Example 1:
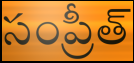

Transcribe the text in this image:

సంప్రీత్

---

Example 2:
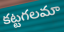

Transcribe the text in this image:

కట్టగలమా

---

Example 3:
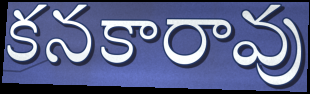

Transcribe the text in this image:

కనకారావు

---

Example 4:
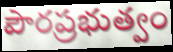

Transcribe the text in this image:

పౌరప్రభుత్వం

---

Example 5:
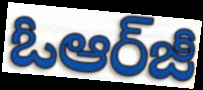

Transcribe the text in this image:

ఓఆర్‌జీ